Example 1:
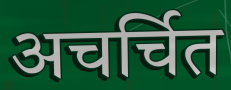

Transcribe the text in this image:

अचर्चित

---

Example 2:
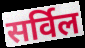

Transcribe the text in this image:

सर्विल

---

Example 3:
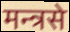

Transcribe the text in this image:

मन्त्रसे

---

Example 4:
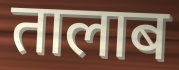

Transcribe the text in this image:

तालाब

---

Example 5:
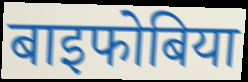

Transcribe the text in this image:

बाइफोबिया